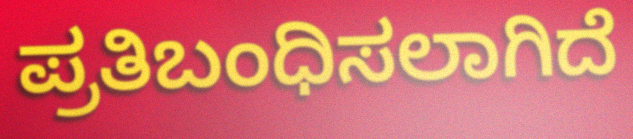
ಪ್ರತಿಬಂಧಿಸಲಾಗಿದೆ